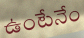
ఉంటేనేం